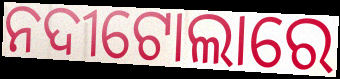
ନଦୀଟୋଲାରେ